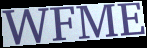
WFME